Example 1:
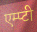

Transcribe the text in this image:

एम्प्टी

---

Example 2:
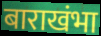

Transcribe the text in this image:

बाराखंभा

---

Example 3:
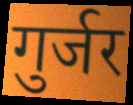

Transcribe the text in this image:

गुर्जर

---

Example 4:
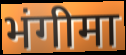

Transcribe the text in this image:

भंगीमा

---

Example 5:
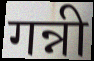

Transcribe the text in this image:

गन्नी